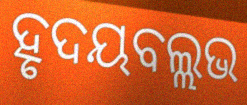
ହୃଦୟବଲ୍ଲଭ